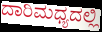
ದಾರಿಮಧ್ಯದಲ್ಲಿ